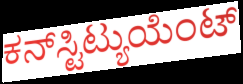
ಕನ್‌ಸ್ಟಿಟ್ಯುಯೆಂಟ್